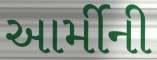
આર્મીની